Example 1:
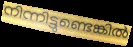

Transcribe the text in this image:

നിന്നിട്ടുണ്ടെങ്കിൽ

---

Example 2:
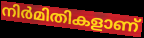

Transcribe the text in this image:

നിർമിതികളാണ്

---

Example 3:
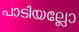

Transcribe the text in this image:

പാടിയല്ലോ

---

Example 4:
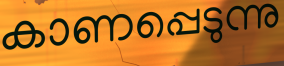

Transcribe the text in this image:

കാണപ്പെടുന്നു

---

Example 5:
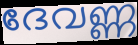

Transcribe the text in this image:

ദേവണ്ണ